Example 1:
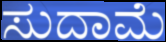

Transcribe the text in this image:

ಸುದಾಮೆ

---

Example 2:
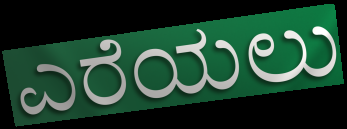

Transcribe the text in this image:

ಎರೆಯಲು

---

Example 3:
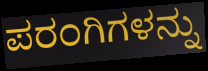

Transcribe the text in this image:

ಪರಂಗಿಗಳನ್ನು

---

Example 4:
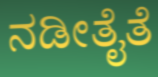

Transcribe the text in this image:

ನಡೀತೈತೆ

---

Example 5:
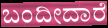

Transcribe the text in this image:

ಬಂದೀದಾರೆ